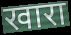
खारा